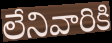
లేనివారికి